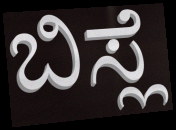
ಬಿಸ್ಲೆ